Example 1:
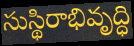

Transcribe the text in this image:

సుస్థిరాభివృద్ధి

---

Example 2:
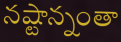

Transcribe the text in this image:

నష్టాన్నంతా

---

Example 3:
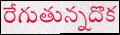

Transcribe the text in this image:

రేగుతున్నదొక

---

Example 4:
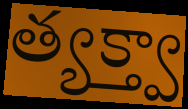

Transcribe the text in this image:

త్యక్త్వా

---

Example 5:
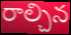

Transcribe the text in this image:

రాల్చిన